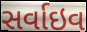
સર્વાઇવ